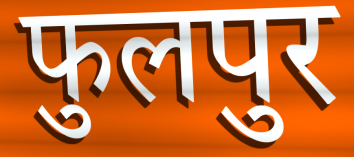
फुलपुर